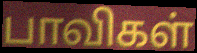
பாவிகள்